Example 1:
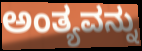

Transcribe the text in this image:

ಅಂತ್ಯವನ್ನು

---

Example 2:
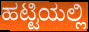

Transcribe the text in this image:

ಹಟ್ಟಿಯಲ್ಲಿ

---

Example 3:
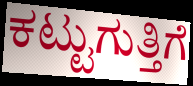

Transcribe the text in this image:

ಕಟ್ಟುಗುತ್ತಿಗೆ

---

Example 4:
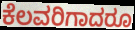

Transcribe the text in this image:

ಕೆಲವರಿಗಾದರೂ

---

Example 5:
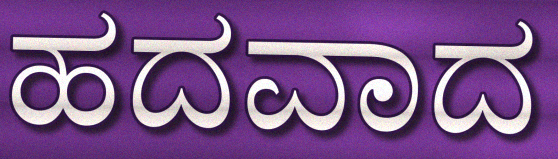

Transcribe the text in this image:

ಹದವಾದ